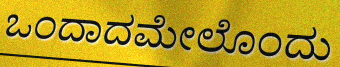
ಒಂದಾದಮೇಲೊಂದು